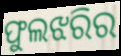
ଫୁଲଝରିର